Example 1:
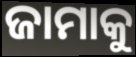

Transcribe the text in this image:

ଜାମାକୁ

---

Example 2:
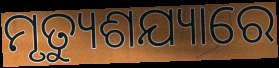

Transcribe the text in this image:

ମୃତ୍ୟୁଶଯ୍ୟାରେ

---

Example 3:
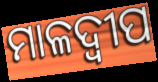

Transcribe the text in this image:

ମାଳଦ୍ଵୀପ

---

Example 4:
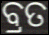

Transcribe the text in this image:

ବ୍ରତ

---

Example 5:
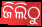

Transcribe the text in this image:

ଜିଲିଠୁ